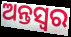
ଅନ୍ତସ୍ୱର